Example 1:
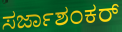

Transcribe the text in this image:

ಸರ್ಜಾಶಂಕರ್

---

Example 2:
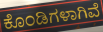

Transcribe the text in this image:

ಕೊಂಡಿಗಳಾಗಿವೆ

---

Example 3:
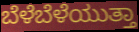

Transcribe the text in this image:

ಬೆಳೆಬೆಳೆಯುತ್ತಾ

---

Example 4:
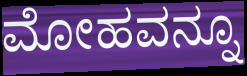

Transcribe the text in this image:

ಮೋಹವನ್ನೂ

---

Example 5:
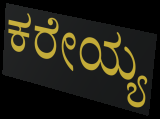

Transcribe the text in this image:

ಕರೇಯ್ಯ